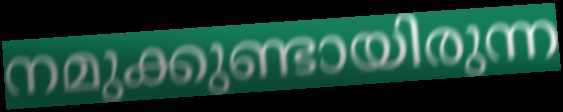
നമുക്കുണ്ടായിരുന്ന